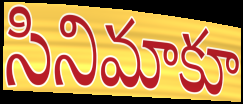
సినిమాకూ